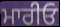
ਮਾਰੀਓ